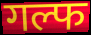
गल्फ